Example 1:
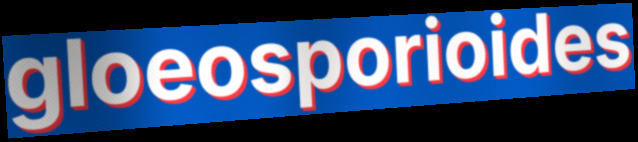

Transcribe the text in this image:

gloeosporioides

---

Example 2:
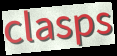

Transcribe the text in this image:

clasps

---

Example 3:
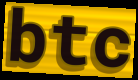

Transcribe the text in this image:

btc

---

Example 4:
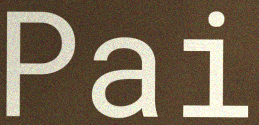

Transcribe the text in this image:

Pai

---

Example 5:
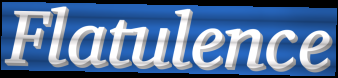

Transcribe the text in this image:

Flatulence